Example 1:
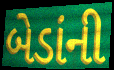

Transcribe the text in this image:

બેડાંની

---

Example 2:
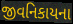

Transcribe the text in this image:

જીવનિકાયના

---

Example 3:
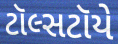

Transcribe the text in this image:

ટૉલ્સટૉયે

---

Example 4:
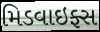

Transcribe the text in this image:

મિડવાઇફ્સ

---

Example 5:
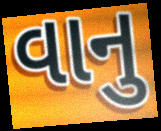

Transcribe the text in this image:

વાનુ